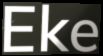
Eke